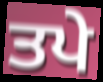
ਤਪੇ